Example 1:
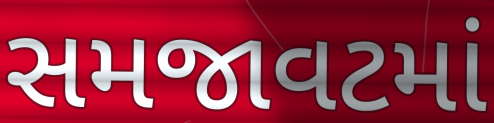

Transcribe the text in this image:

સમજાવટમાં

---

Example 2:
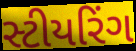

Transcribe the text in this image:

સ્ટીયરિંગ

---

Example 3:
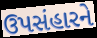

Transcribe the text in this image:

ઉપસંહારને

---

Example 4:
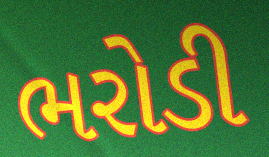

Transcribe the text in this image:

ભરોડી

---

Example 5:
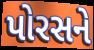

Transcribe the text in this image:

પોરસને